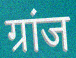
ग्रांज